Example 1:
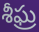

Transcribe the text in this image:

శీఘ్ర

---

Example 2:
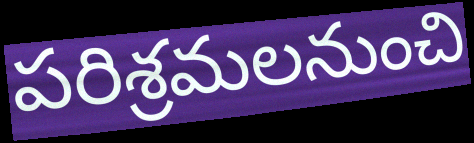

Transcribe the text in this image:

పరిశ్రమలనుంచి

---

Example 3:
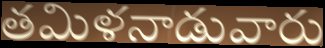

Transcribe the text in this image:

తమిళనాడువారు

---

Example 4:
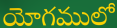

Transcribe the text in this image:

యోగములో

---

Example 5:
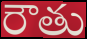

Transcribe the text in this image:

రౌతు